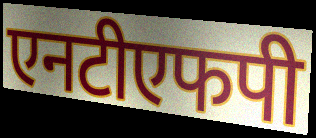
एनटीएफपी